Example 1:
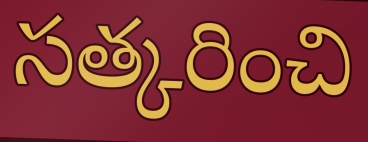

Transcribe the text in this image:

సత్కరించి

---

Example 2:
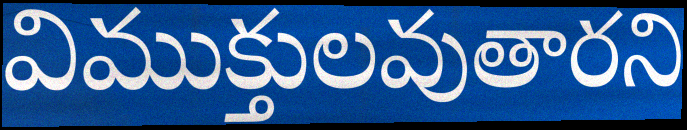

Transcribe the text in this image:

విముక్తులవుతారని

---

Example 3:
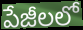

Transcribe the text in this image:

పేజీలలో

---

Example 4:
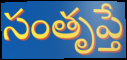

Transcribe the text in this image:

సంతృప్తే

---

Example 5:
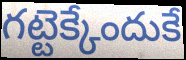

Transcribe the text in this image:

గట్టెక్కేందుకే